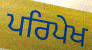
ਪਰਿਪੇਖ